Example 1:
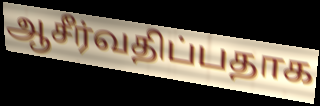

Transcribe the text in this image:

ஆசீர்வதிப்பதாக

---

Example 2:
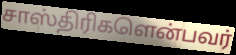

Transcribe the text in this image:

சாஸ்திரிகளென்பவர்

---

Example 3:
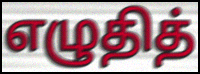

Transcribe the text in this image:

எழுதித்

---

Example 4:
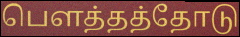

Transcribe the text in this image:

பௌத்தத்தோடு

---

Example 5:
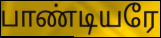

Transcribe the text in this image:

பாண்டியரே